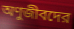
অণুজীবদের